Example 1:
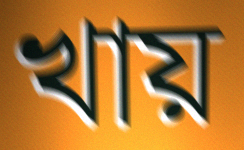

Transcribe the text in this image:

খায়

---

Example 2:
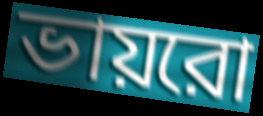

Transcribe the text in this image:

ভায়রো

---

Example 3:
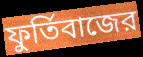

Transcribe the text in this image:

ফুর্তিবাজের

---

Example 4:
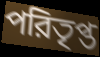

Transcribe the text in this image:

পরিতৃপ্ত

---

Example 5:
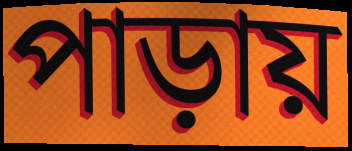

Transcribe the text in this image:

পাড়ায়